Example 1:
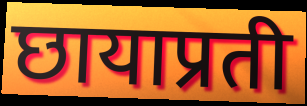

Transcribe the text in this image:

छायाप्रती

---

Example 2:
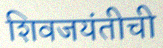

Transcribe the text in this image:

शिवजयंतीची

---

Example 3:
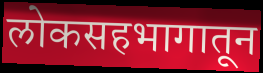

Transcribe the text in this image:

लोकसहभागातून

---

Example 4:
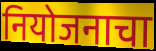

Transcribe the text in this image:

नियोजनाचा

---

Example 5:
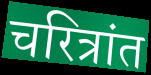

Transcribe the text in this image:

चरित्रांत